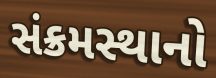
સંક્રમસ્થાનો